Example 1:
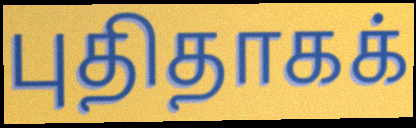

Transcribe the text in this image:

புதிதாகக்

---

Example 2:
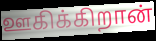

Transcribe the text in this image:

ஊகிக்கிறான்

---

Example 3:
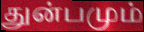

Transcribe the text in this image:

துன்பமும்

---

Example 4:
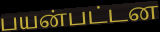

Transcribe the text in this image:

பயன்பட்டன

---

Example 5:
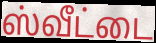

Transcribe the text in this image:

ஸ்வீட்டை